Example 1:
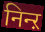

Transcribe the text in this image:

निन्ऱ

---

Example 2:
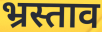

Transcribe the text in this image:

भ्रस्ताव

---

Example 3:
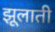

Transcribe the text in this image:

झूलाती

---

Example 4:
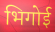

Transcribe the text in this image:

भिगोई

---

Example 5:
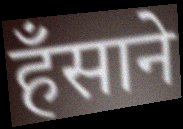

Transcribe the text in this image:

हँसाने